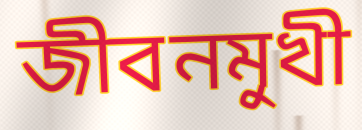
জীবনমুখী